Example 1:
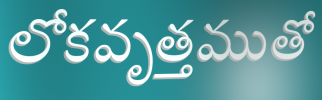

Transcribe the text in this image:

లోకవృత్తముతో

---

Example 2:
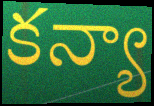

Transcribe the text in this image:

కన్యా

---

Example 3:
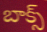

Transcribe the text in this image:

బాక్స్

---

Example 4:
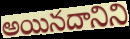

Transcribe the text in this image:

అయినదానిని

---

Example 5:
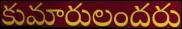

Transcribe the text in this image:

కుమారులందరు